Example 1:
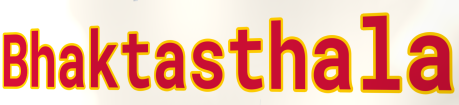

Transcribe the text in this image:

Bhaktasthala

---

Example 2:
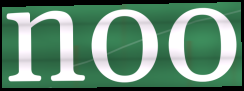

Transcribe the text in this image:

noo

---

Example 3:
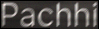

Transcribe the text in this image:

Pachhi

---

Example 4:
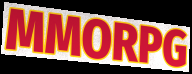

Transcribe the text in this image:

MMORPG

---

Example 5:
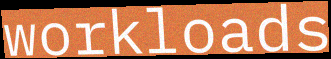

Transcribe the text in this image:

workloads